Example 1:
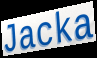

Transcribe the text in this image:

Jacka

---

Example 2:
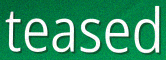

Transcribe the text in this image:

teased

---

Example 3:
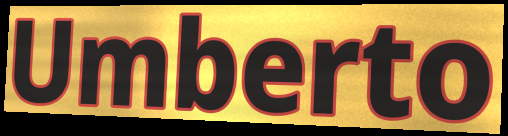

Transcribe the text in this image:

Umberto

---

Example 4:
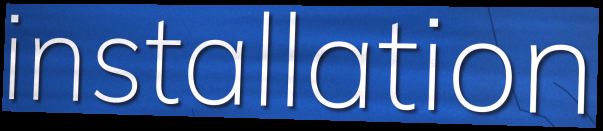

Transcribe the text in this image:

installation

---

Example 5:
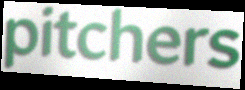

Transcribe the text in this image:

pitchers